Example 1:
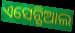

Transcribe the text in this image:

ଏସେନ୍ସିଆଲ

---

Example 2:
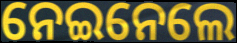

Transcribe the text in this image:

ନେଇନେଲେ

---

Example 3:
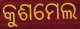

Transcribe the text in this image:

କୁଶମେଲ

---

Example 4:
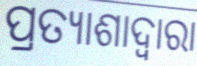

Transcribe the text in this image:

ପ୍ରତ୍ୟାଶାଦ୍ୱାରା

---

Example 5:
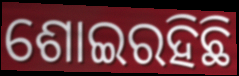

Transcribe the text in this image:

ଶୋଇରହିଛି